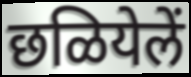
छळियेलें